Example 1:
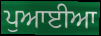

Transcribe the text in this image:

ਪੁਆਈਆ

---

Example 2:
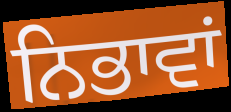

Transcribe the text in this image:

ਨਿਭਾਵਾਂ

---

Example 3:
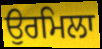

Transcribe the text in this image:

ਉਰਮਿਲਾ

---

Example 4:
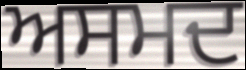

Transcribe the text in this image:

ਅਸਮਦ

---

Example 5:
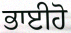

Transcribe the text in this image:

ਭਾਈਹੋ